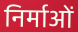
निर्माओं